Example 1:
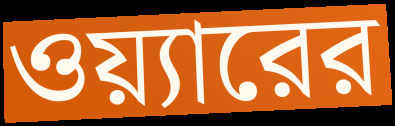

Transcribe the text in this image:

ওয়্যারের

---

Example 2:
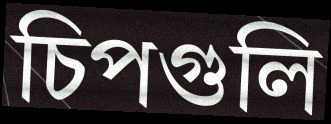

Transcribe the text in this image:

চিপগুলি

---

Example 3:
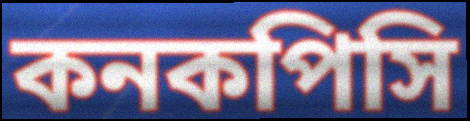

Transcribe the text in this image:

কনকপিসি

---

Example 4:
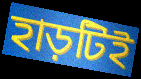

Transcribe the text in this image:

হাড়টিই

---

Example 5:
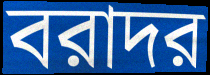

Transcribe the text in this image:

বরাদর